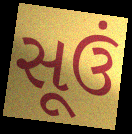
સૂઉં